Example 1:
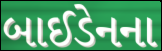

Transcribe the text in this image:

બાઈડેનના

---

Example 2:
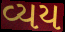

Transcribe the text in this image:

વ્યય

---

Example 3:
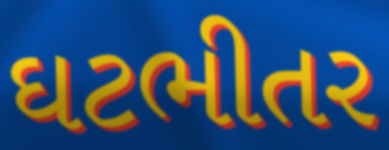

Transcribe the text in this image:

ઘટભીતર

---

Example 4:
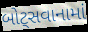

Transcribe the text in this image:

બોટ્સવાનામાં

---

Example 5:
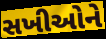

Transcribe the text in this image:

સખીઓને